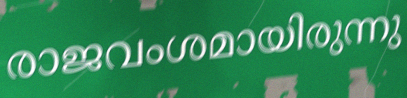
രാജവംശമായിരുന്നു